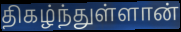
திகழ்ந்துள்ளான்